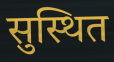
सुस्थित